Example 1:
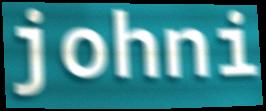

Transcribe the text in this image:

johni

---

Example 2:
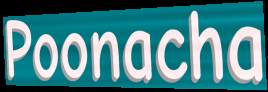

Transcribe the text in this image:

Poonacha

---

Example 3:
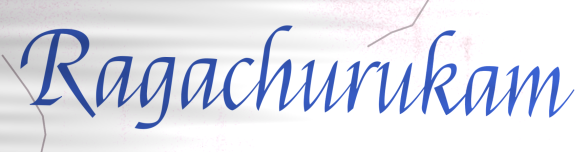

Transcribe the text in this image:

Ragachurukam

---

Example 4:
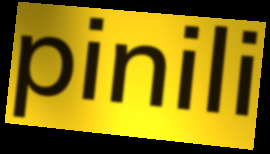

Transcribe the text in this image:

pinili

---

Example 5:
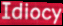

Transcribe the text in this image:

Idiocy